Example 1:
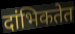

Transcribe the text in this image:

दांभिकतेत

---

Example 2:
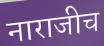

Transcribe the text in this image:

नाराजीच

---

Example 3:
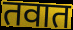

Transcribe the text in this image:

तवात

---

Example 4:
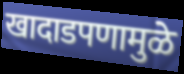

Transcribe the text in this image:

खादाडपणामुळे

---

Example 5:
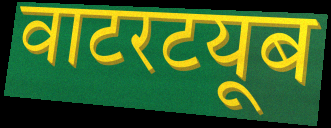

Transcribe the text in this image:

वाटरटयूब